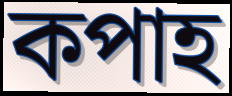
কপাহ